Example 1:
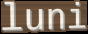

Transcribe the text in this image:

luni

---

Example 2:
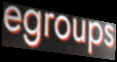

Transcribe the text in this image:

egroups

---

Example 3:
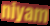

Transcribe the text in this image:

niyam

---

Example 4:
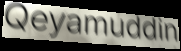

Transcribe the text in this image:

Qeyamuddin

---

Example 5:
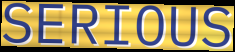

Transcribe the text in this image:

SERIOUS